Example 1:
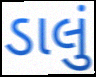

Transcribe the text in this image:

ડાલું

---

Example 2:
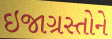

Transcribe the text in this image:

ઇજાગ્રસ્તોને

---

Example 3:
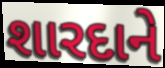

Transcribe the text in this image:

શારદાને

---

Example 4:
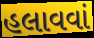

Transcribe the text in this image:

હલાવવાં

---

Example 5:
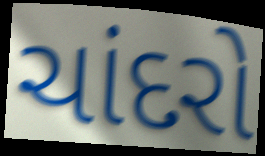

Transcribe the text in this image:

ચાંદરો